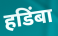
हडिंबा